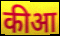
कीआ